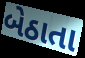
બેઠાતા